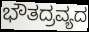
ಭೌತದ್ರವ್ಯದ